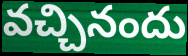
వచ్చినందు